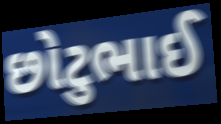
છોટુભાઈ